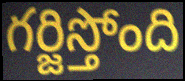
గర్జిస్తోంది